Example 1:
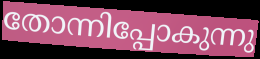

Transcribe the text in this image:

തോന്നിപ്പോകുന്നു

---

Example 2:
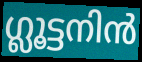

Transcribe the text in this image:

ഗ്ലൂട്ടനിൻ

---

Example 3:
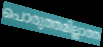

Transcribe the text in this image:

പൊരുത്തമില്ലാത്ത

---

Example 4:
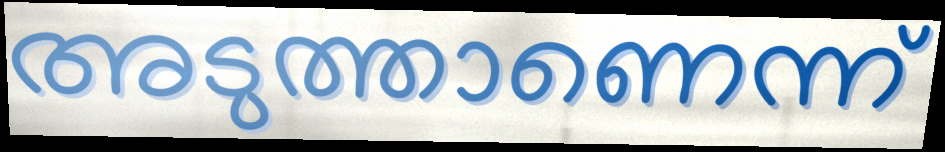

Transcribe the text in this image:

അടുത്താണെന്ന്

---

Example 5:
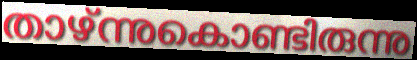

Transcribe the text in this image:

താഴ്ന്നുകൊണ്ടിരുന്നു